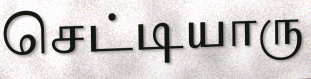
செட்டியாரு